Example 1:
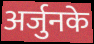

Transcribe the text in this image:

अर्जुनके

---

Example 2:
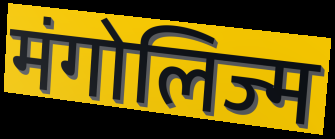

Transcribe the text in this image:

मंगोलिज्म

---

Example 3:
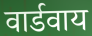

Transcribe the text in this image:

वार्डवाय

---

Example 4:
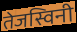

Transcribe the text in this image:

तेजस्विनी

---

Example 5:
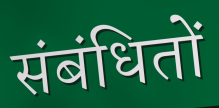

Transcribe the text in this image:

संबंधितों